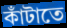
কাঁটাতে